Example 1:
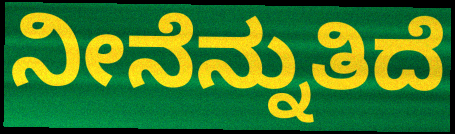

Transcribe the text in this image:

ನೀನೆನ್ನುತಿದೆ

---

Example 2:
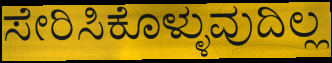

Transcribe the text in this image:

ಸೇರಿಸಿಕೊಳ್ಳುವುದಿಲ್ಲ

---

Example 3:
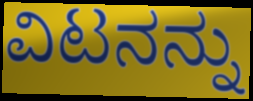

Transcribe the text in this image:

ವಿಟನನ್ನು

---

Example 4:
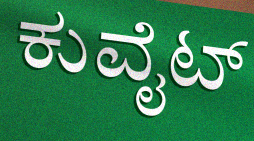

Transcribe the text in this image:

ಕುವೈಟ್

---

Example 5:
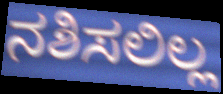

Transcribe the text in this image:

ನಶಿಸಲಿಲ್ಲ